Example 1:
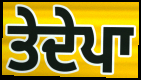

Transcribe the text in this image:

ਤੇਦੇਪਾ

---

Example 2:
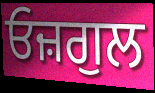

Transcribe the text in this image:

ਓਜ਼ਗੁਲ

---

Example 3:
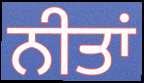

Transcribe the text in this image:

ਨੀਤਾਂ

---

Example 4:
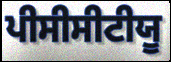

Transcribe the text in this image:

ਪੀਸੀਸੀਟੀਯੂ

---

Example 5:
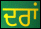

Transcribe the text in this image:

ਦਰਾਂ